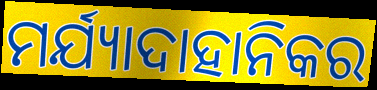
ମର୍ଯ୍ୟାଦାହାନିକର